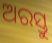
ଅରସ୍ତୁ